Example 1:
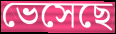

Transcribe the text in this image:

ভেসেছে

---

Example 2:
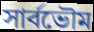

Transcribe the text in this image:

সার্বভৌম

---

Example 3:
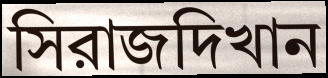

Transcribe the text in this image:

সিরাজদিখান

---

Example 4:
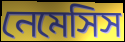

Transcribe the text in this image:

নেমেসিস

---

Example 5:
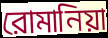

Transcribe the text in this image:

রোমানিয়া